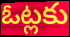
ఓట్లకు